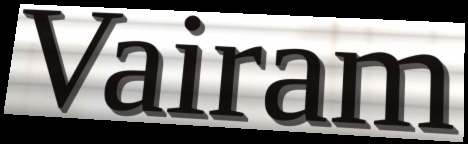
Vairam